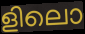
ളിലൊ